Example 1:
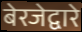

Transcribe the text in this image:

बेरजेद्वारे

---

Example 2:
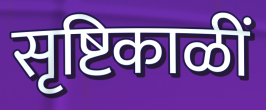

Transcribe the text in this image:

सृष्टिकाळीं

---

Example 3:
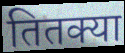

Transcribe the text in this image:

तितक्या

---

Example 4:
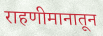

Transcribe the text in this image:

राहणीमानातून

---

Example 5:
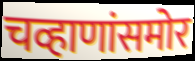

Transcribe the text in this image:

चव्हाणांसमोर